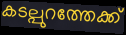
കടല്പുറത്തേക്ക്